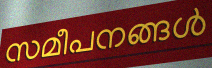
സമീപനങ്ങൾ